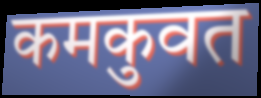
कमकुवत